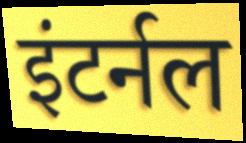
इंटर्नल